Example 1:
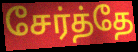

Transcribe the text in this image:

சேர்த்தே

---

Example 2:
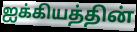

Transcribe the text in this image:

ஐக்கியத்தின்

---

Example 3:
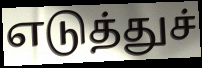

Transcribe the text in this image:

எடுத்துச்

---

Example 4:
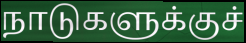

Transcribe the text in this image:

நாடுகளுக்குச்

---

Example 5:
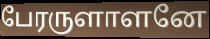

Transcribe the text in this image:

பேரருளாளனே